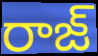
రాజ్